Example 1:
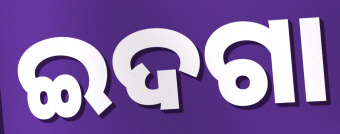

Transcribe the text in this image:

ଇଦଗା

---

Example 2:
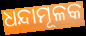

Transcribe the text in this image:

ଧନ୍ଦାମୂଳକ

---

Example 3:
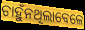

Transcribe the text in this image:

ଚାହୁଁନଥିଲାବେଳେ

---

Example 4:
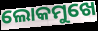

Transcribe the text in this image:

ଲୋକମୁଖେ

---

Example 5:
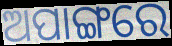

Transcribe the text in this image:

ଅପାଙ୍ଗରେ